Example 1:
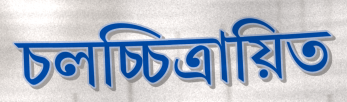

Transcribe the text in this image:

চলচ্চিত্রায়িত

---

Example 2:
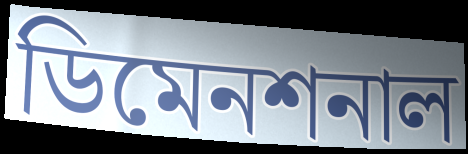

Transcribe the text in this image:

ডিমেনশনাল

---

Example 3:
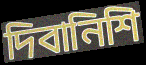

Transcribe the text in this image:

দিবানিশি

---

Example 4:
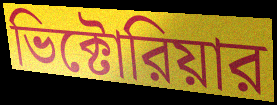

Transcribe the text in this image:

ভিক্টোরিয়ার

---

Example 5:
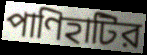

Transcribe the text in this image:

পাণিহাটির